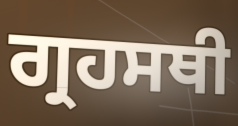
ਗ੍ਰਹਸਥੀ